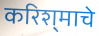
करिश्माचे